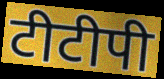
टीटीपी